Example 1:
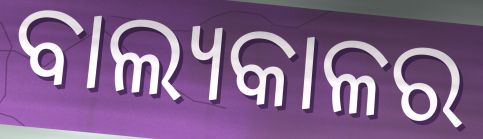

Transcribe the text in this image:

ବାଲ୍ୟକାଳର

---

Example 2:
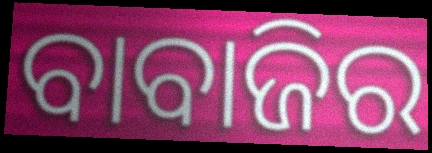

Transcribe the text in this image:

ବାବାଜିର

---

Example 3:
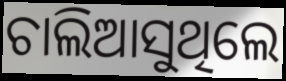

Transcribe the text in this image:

ଚାଲିଆସୁଥିଲେ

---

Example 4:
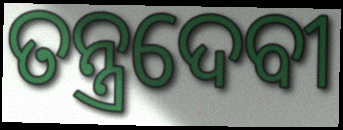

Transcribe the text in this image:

ତନ୍ତ୍ରଦେବୀ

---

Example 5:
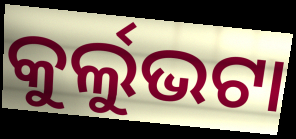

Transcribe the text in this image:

କୁର୍ଲୁଭଟା